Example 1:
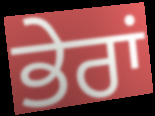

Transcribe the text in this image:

ਭੇਰਾਂ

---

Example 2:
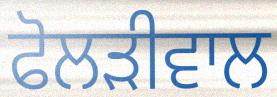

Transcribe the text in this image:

ਫੋਲੜੀਵਾਲ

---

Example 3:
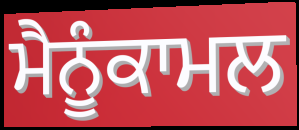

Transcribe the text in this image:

ਮੈਨੂੰਕਾਮਲ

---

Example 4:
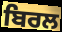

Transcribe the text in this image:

ਬਿਰਲ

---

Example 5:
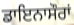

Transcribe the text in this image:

ਡਾਇਨਾਸੌਰਾਂ